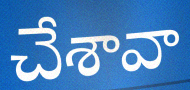
చేశావా